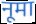
नूमा